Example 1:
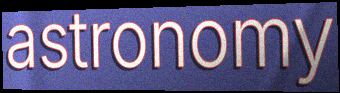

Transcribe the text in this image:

astronomy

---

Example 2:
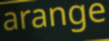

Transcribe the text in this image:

arange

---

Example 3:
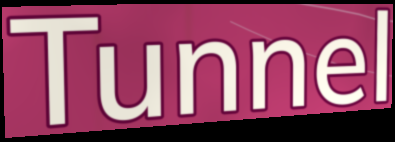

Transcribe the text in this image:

Tunnel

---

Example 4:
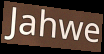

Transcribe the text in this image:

Jahwe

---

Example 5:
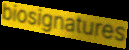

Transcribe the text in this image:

biosignatures